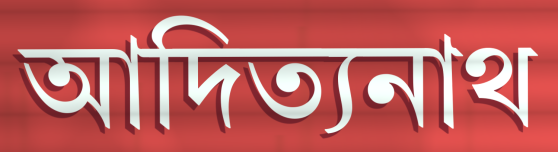
আদিত্যনাথ